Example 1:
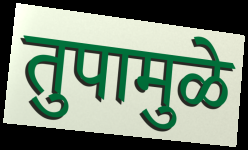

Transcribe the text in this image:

तुपामुळे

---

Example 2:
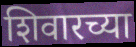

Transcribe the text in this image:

शिवारच्या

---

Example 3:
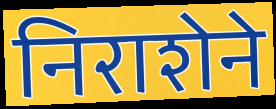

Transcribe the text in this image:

निराशेने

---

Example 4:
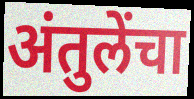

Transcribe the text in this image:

अंतुलेंचा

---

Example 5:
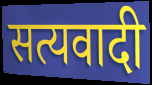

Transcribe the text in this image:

सत्यवादी